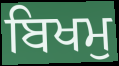
ਬਿਖਮੁ